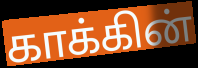
காக்கின்